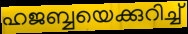
ഹജബ്ബയെക്കുറിച്ച്